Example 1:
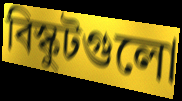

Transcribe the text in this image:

বিস্কুটগুলো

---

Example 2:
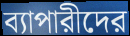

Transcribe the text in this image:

ব্যাপারীদের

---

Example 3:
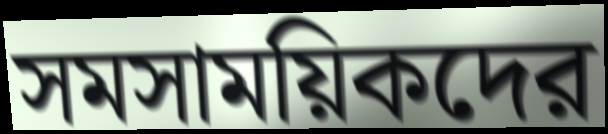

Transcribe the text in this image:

সমসাময়িকদের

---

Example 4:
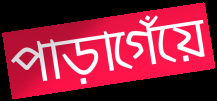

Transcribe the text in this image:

পাড়াগেঁয়ে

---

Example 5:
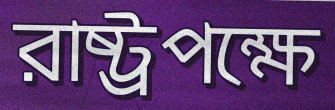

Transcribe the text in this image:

রাষ্ট্রপক্ষে